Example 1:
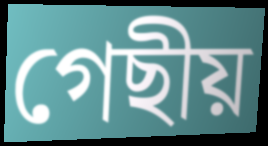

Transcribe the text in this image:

গেছীয়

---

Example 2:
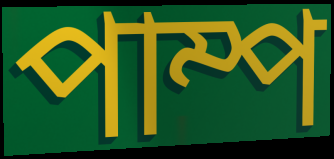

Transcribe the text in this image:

পাম্প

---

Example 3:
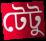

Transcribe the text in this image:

টেটু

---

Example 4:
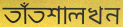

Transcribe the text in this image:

তাঁতশালখন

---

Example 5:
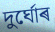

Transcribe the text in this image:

দুৰ্ঘোৰ